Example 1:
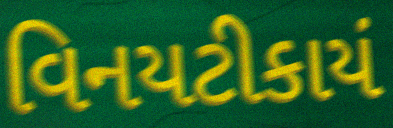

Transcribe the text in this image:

વિનયટીકાયં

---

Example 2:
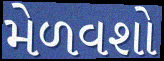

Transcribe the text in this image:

મેળવશો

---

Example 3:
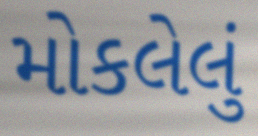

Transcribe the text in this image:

મોકલેલું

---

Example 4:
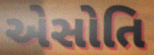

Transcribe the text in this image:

એસોતિ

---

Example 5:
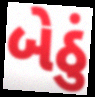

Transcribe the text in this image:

બેઠું